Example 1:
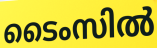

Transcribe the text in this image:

ടൈംസിൽ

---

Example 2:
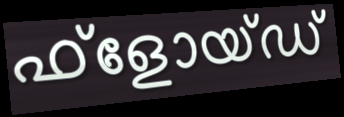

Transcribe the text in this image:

ഫ്ളോയ്ഡ്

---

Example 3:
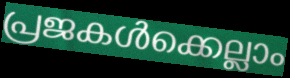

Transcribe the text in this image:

പ്രജകൾക്കെല്ലാം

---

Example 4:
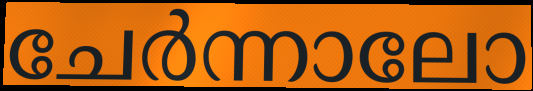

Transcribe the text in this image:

ചേർന്നാലോ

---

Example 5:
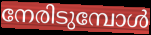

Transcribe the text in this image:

നേരിടുമ്പോൾ